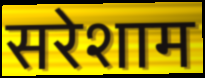
सरेशाम